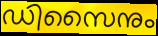
ഡിസൈനും